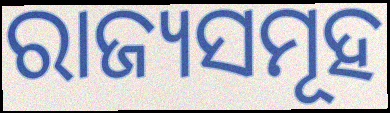
ରାଜ୍ୟସମୂହ